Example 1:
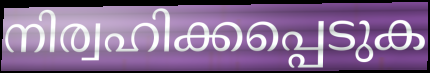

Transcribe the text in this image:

നിര്വഹിക്കപ്പെടുക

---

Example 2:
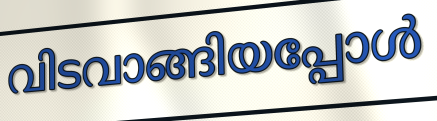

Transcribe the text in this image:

വിടവാങ്ങിയപ്പോൾ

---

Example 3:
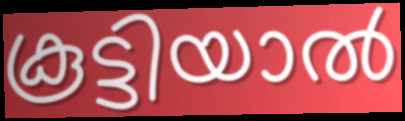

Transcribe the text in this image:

കൂട്ടിയാൽ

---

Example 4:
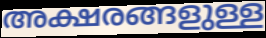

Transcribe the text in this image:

അക്ഷരങ്ങളുള്ള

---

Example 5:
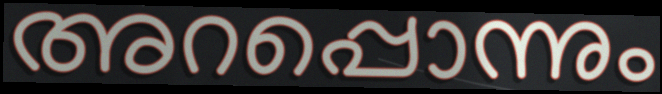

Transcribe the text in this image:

അറപ്പൊന്നും